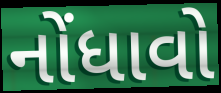
નોંધાવો